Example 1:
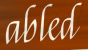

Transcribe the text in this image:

abled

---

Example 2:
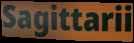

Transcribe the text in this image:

Sagittarii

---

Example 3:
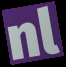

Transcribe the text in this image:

nl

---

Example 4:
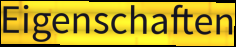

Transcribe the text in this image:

Eigenschaften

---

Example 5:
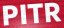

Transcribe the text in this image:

PITR